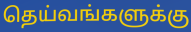
தெய்வங்களுக்கு